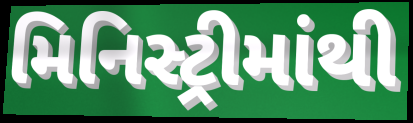
મિનિસ્ટ્રીમાંથી